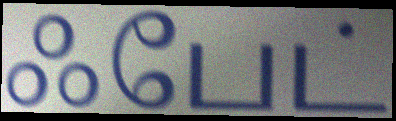
ஃபேட்